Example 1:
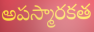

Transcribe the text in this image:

అపస్మారకత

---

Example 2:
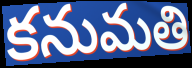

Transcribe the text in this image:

కనుమతి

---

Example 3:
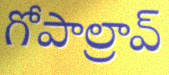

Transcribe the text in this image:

గోపాల్రావ్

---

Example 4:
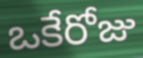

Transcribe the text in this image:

ఒకేరోజు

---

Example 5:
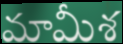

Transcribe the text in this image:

మామీశ